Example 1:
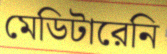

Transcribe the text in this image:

মেডিটারেনি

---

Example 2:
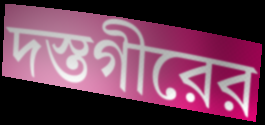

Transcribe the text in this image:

দস্তগীরের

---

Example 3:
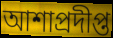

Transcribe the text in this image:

আশাপ্রদীপ্ত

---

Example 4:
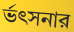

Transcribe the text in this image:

র্ভৎসনার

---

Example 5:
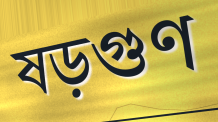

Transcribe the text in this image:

ষড়গুণ